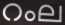
റംല